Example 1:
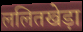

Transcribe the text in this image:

ललितखेड़ा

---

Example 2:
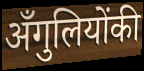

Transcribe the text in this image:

अँगुलियोंकी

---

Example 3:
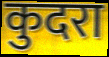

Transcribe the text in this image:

कुदरा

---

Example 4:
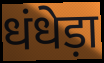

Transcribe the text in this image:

धंधेड़ा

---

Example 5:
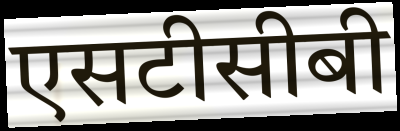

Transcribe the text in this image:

एसटीसीबी